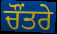
ਚੌਂਤਰੇ